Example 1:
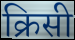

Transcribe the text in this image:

क्रिसी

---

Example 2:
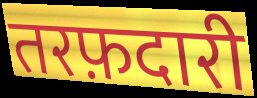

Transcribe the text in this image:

तरफ़दारी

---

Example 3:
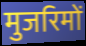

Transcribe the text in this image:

मुजरिमों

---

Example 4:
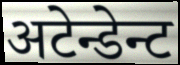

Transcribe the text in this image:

अटेन्डेन्ट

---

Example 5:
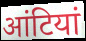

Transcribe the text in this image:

आंटियां